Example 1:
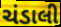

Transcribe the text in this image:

ચંડાલી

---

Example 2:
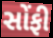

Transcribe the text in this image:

સોંફી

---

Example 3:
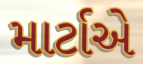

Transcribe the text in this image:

માર્ટાએ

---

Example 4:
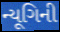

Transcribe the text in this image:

ન્યૂગિની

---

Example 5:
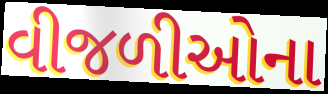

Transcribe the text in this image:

વીજળીઓના